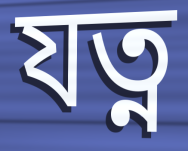
যত্ন